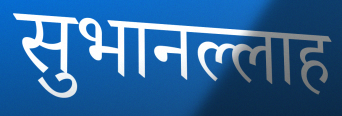
सुभानल्लाह